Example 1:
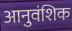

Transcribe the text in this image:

आनुवंशिक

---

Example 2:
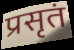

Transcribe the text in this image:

प्रसृतं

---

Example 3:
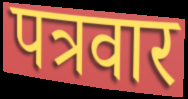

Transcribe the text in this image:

पत्रवार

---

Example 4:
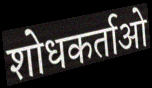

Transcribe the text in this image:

शोधकर्ताओ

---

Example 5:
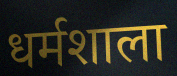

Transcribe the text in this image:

धर्मशाला